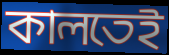
কালতেই